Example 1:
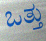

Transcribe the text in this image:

ಒತ್ತು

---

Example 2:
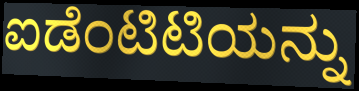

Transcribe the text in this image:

ಐಡೆಂಟಿಟಿಯನ್ನು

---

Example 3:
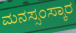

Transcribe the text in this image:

ಮನಸ್ಸಂಸ್ಕಾರ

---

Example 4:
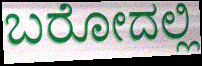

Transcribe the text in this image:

ಬರೋದಲ್ಲಿ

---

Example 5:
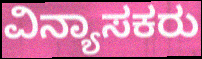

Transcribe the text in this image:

ವಿನ್ಯಾಸಕರು